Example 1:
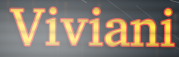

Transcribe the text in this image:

Viviani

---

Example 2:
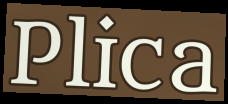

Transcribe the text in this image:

Plica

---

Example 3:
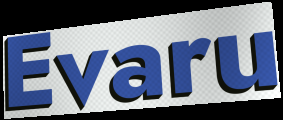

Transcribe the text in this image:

Evaru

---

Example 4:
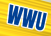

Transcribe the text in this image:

WWU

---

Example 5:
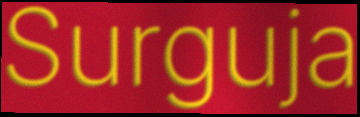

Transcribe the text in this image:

Surguja